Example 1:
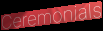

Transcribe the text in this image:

Ceremonials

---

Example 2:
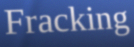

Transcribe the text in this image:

Fracking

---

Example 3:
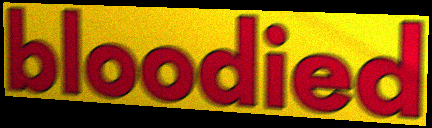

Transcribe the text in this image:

bloodied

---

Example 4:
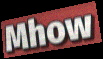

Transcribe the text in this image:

Mhow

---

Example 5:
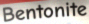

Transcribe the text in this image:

Bentonite